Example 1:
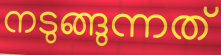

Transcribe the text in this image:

നടുങ്ങുന്നത്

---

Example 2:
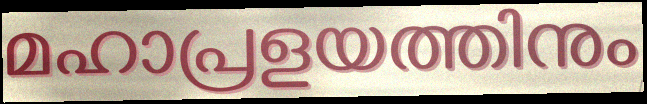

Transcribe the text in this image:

മഹാപ്രളയത്തിനും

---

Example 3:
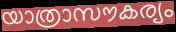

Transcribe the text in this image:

യാത്രാസൗകര്യം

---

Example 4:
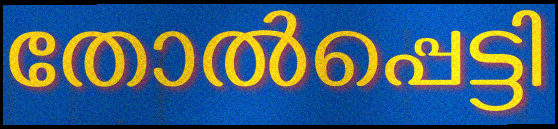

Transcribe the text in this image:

തോൽപ്പെട്ടി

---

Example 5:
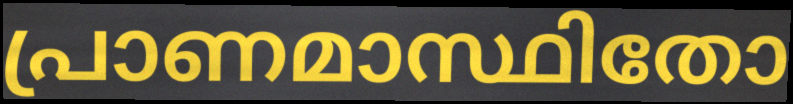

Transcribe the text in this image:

പ്രാണമാസ്ഥിതോ